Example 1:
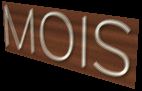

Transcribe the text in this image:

MOIS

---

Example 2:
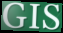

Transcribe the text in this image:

GIS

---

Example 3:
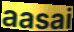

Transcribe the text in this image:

aasai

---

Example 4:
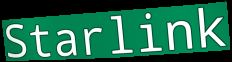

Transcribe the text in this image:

Starlink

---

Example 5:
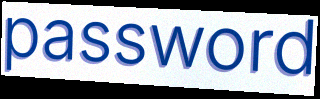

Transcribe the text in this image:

password